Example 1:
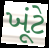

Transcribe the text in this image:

ખૂંટે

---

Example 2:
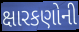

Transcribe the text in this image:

ક્ષારકણોની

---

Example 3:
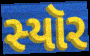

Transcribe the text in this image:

સ્યૉર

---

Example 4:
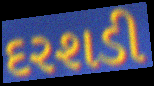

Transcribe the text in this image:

દરશડી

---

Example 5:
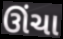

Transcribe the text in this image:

ઊંચા